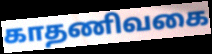
காதணிவகை